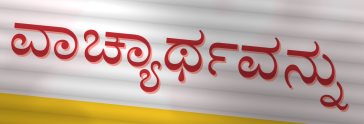
ವಾಚ್ಯಾರ್ಥವನ್ನು